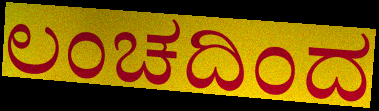
ಲಂಚದಿಂದ